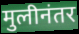
मुलीनंतर